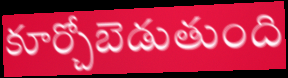
కూర్చోబెడుతుంది